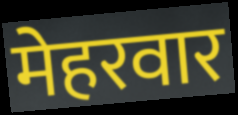
मेहरवार